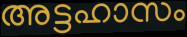
അട്ടഹാസം